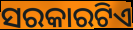
ସରକାରଟିଏ